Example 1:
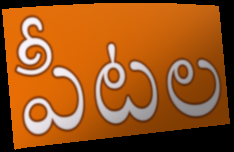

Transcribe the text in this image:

పీటల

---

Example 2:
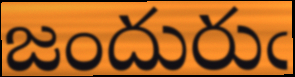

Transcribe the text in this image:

జందురుఁ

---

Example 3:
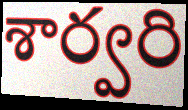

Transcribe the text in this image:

శార్వరి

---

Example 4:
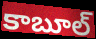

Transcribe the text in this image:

కాబూల్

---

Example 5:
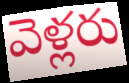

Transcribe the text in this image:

వెళ్లరు